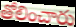
తోలించారు